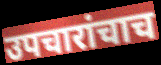
उपचारांचाच